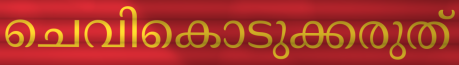
ചെവികൊടുക്കരുത്